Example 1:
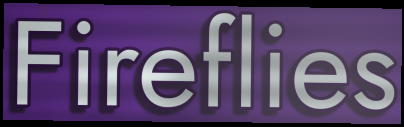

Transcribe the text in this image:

Fireflies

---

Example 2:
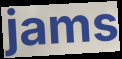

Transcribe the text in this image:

jams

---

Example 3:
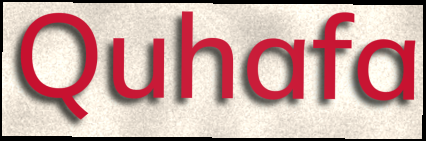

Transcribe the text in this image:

Quhafa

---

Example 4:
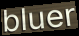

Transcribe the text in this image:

bluer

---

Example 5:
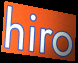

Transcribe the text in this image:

hiro